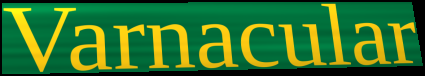
Varnacular